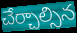
చేర్చాల్సిన